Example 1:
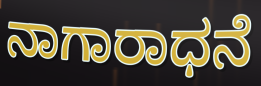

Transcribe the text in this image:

ನಾಗಾರಾಧನೆ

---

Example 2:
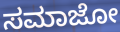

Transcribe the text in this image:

ಸಮಾಜೋ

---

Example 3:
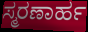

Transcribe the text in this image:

ಸ್ಮರಣಾರ್ಹ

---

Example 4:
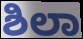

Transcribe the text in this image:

ಶಿಲಾ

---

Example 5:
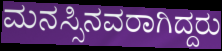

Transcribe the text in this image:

ಮನಸ್ಸಿನವರಾಗಿದ್ದರು